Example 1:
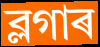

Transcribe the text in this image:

ব্লগাৰ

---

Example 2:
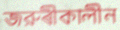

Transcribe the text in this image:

জৰুৰীকালীন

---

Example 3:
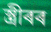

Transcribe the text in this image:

স্ত্ৰীৰৰ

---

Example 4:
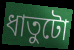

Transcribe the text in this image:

ধাতুটো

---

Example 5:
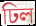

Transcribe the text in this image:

ঢিল